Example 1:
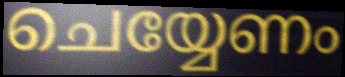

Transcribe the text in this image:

ചെയ്യേണം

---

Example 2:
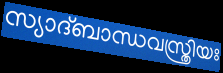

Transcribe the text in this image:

സ്യാദ്ബാന്ധവസ്ത്രിയഃ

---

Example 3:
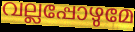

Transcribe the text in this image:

വല്ലപ്പോഴുമേ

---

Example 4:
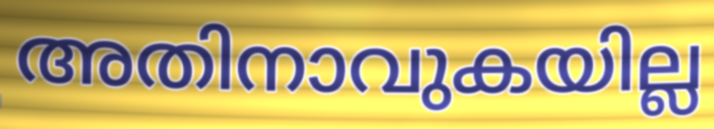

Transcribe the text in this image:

അതിനാവുകയില്ല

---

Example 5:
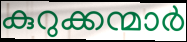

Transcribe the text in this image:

കുറുക്കന്മാർ